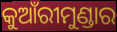
କୁଆଁରୀମୁଣ୍ଡାର